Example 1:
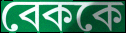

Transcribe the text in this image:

বেককে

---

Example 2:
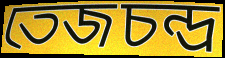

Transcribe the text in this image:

তেজচন্দ্র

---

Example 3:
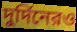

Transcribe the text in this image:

দুর্দিনেরও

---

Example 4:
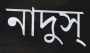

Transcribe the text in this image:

নাদুস্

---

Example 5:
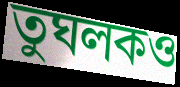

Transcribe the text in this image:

তুঘলকও